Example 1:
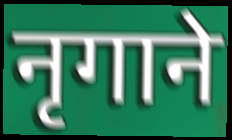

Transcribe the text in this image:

नृगाने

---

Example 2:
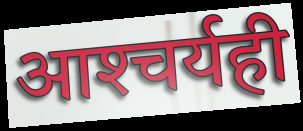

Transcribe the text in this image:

आश्‍चर्यही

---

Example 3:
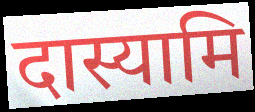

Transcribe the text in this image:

दास्यामि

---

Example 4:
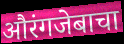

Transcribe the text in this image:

औरंगजेबाचा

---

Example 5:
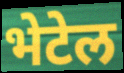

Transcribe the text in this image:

भेटेल